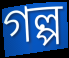
গল্প